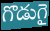
గొడుగై